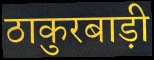
ठाकुरबाड़ी